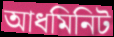
আধমিনিট